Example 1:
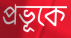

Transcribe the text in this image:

প্রভূকে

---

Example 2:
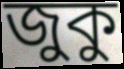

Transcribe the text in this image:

জুকু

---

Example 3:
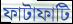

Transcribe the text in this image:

ফাটাফাটি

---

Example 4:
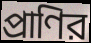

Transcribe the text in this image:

প্রাণির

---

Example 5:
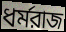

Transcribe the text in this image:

ধর্মরাজ